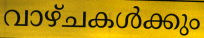
വാഴ്ചകൾക്കും